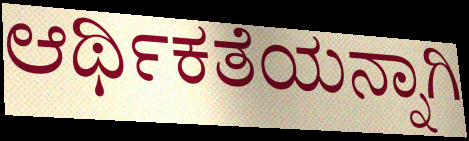
ಆರ್ಥಿಕತೆಯನ್ನಾಗಿ